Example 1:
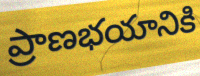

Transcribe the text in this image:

ప్రాణభయానికి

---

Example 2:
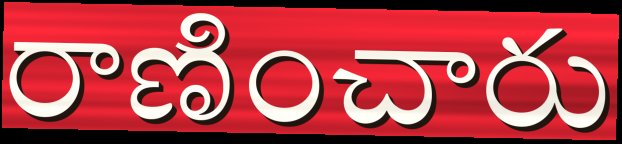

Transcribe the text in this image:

రాణించారు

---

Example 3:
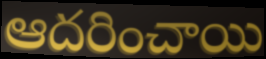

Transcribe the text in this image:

ఆదరించాయి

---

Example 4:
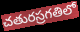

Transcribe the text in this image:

చతురస్రగతిలో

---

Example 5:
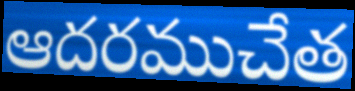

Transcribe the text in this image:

ఆదరముచేత